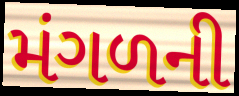
મંગળની